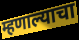
म्हणाल्याचा